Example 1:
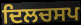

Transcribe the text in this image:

ਦਿਲਚਸਪ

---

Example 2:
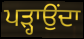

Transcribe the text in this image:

ਪੜ੍ਹਾਉਂਦਾ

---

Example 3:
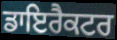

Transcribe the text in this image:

ਡਾਇਰੈਕਟਰ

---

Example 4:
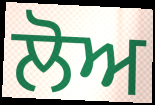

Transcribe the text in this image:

ਲੋਅ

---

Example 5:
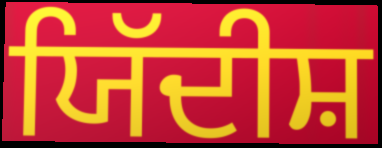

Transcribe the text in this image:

ਯਿੱਦੀਸ਼